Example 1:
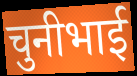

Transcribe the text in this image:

चुनीभाई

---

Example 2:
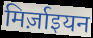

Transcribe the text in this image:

मिर्ज़ाइयन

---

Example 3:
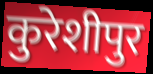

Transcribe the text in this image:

कुरेशीपुर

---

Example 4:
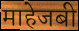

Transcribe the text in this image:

माहेजबी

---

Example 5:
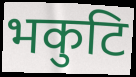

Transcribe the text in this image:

भकुटि